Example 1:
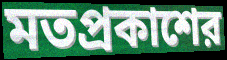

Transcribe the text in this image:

মতপ্রকাশের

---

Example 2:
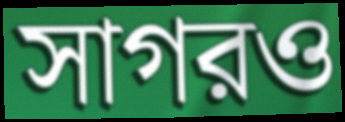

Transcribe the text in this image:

সাগরও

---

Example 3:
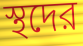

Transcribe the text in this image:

স্থদের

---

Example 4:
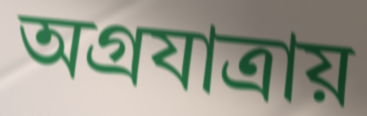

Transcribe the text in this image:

অগ্রযাত্রায়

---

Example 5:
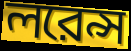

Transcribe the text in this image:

লরেন্স